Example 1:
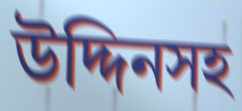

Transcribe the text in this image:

উদ্দিনসহ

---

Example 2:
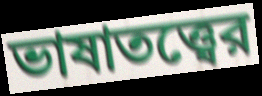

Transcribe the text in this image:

ভাষাতত্ত্বের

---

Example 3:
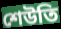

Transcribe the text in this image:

শেউতি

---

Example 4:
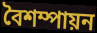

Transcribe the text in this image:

বৈশম্পায়ন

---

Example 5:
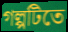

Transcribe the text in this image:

গল্পটিতে